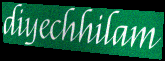
diyechhilam